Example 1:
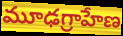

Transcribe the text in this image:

మూఢగ్రాహేణ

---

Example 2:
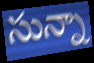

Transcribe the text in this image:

సున్నా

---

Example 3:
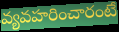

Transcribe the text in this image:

వ్యవహరించారంటే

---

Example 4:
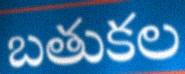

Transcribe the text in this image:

బతుకల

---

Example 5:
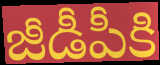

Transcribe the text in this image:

జీడీపీకి